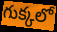
గుక్కలో